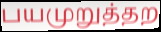
பயமுறுத்தற